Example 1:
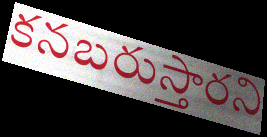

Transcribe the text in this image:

కనబరుస్తారని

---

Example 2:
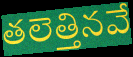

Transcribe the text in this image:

తలెత్తినవే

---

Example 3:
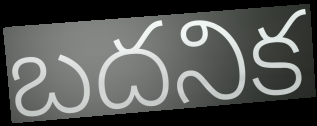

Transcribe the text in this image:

బదనిక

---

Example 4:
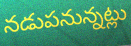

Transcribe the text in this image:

నడుపనున్నట్లు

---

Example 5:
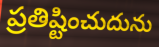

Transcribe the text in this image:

ప్రతిష్టించుదును